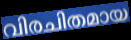
വിരചിതമായ